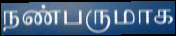
நண்பருமாக